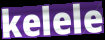
kelele